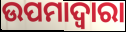
ଉପମାଦ୍ୱାରା